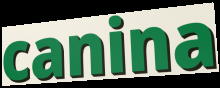
canina